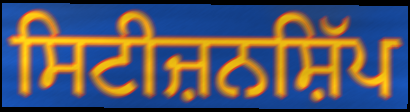
ਸਿਟੀਜ਼ਨਸ਼ਿੱਪ